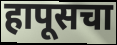
हापूसचा